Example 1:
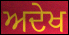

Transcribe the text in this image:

ਅਦੇਖ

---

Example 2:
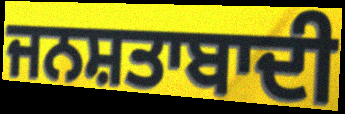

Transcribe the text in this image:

ਜਨਸ਼ਤਾਬਾਦੀ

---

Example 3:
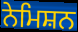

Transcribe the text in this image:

ਨੇਮਿਸ਼ਨ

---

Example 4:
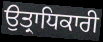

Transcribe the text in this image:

ਉਤ੍ਰਾਧਿਕਾਰੀ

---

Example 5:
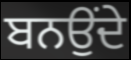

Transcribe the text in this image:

ਬਨਉਂਦੇ